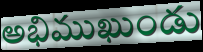
అభిముఖుండు